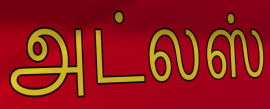
அட்லஸ்